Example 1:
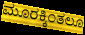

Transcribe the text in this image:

ಮೂರಕ್ಕಿಂತಲೂ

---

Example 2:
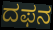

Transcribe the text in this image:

ದಫನ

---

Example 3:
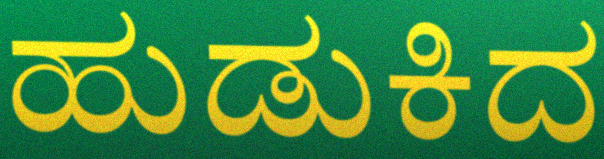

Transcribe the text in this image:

ಹುಡುಕಿದ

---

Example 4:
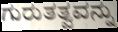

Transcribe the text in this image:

ಗುರುತತ್ವವನ್ನು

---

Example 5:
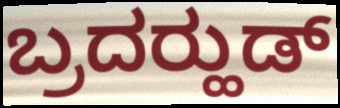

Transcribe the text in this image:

ಬ್ರದರ್‍ಹುಡ್